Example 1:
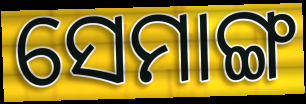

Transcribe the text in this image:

ସେମାଙ୍ଗ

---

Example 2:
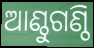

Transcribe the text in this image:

ଆଣ୍ଠୁଗଣ୍ଠି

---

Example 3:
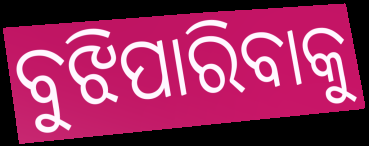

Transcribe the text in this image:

ବୁଝିପାରିବାକୁ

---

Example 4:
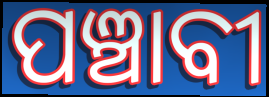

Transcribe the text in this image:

ପଞ୍ଚାବୀ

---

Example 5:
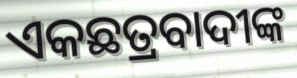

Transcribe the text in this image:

ଏକଛତ୍ରବାଦୀଙ୍କ